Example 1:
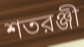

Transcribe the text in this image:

শতরঞ্জী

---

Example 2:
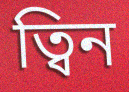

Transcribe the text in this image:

ত্বিন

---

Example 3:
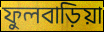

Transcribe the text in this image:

ফুলবাড়িয়া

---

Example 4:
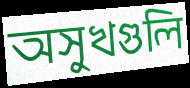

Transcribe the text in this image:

অসুখগুলি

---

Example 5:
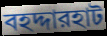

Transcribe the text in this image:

বহদ্দারহাট